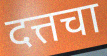
दत्तचा